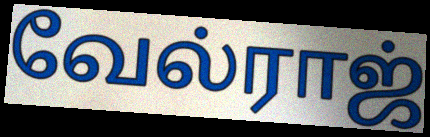
வேல்ராஜ்